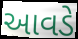
આવડે